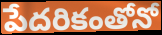
పేదరికంతోనో